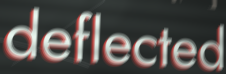
deflected